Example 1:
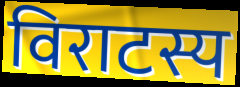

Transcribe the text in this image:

विराटस्य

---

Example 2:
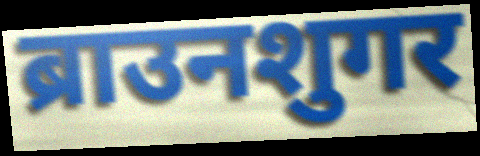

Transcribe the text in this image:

ब्राउनशुगर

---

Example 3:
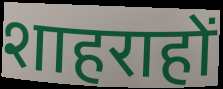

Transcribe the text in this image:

शाहराहों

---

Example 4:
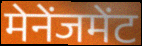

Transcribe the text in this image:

मेनेंजमेंट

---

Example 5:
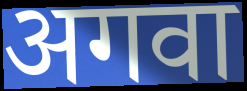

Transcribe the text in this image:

अगवा